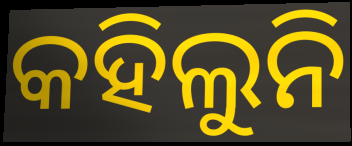
କହିଲୁନି